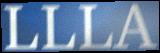
LLLA